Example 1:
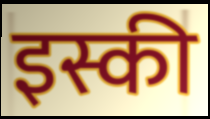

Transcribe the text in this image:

इस्की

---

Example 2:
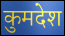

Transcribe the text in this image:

कुमदेश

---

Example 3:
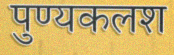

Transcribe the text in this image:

पुण्यकलश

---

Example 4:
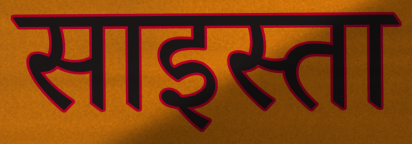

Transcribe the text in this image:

साइस्ता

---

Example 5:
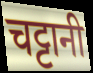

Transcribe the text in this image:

चट्टानी